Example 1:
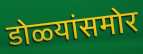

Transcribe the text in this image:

डोळ्यांसमोर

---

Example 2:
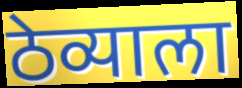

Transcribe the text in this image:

ठेव्याला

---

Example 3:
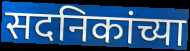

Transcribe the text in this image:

सदनिकांच्या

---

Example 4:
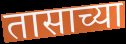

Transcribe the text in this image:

तासाच्या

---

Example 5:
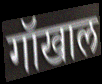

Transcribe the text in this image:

गॉखाल